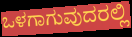
ಒಳಗಾಗುವುದರಲ್ಲಿ